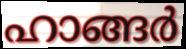
ഹാങ്ങർ